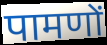
पामणों